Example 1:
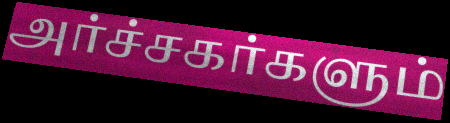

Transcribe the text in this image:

அர்ச்சகர்களும்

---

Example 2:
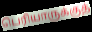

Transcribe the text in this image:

பெரியாருக்குத்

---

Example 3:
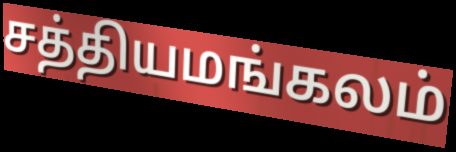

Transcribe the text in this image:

சத்தியமங்கலம்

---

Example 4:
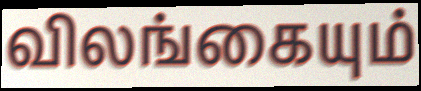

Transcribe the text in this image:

விலங்கையும்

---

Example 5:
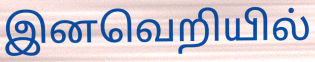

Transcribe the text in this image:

இனவெறியில்